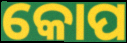
କୋପ